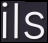
ils